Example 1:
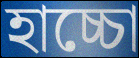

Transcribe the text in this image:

হাচ্চো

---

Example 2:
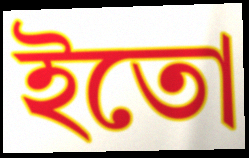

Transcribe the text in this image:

ইতো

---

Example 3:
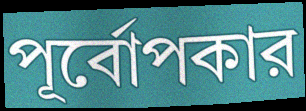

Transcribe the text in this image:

পূর্বোপকার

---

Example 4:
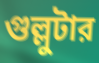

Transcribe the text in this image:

গুল্লুটার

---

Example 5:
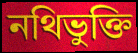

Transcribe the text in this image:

নথিভুক্তি